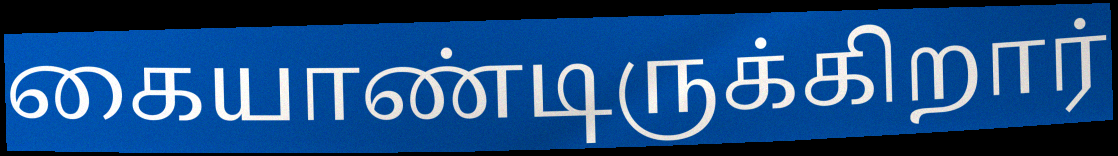
கையாண்டிருக்கிறார்